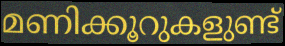
മണിക്കൂറുകളുണ്ട്